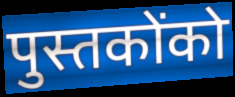
पुस्तकोंको